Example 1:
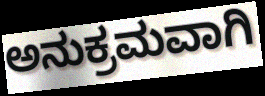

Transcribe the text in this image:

ಅನುಕ್ರಮವಾಗಿ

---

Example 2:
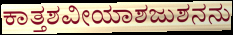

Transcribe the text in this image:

ಕಾತ್ತಶವೀಯಾಶಜುಶನನು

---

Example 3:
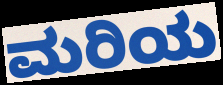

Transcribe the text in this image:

ಮರಿಯ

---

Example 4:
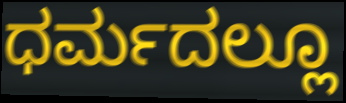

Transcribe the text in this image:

ಧರ್ಮದಲ್ಲೂ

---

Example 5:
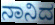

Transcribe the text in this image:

ನಾನಿದ